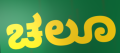
ಚಲೂ